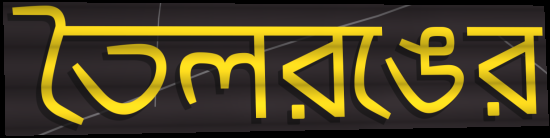
তৈলরঙের